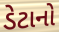
ડેટાનો